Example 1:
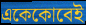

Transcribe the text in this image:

একেকোবেই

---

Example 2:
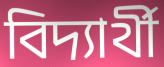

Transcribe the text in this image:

বিদ্যাৰ্থী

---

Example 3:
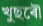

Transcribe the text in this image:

খুছৰৌ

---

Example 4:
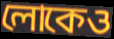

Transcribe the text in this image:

লোকেও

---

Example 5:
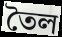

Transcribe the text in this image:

তৈল